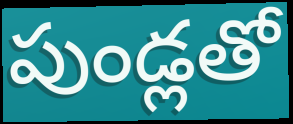
పుండ్లతో